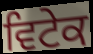
ਵਿਟੇਕ